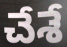
చేశే